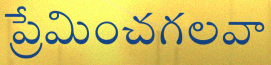
ప్రేమించగలవా